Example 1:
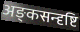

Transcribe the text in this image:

अङ्कसन्दृष्टि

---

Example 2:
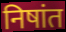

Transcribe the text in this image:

निषांत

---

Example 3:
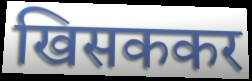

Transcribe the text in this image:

खिसककर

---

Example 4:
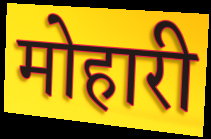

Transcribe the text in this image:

मोहारी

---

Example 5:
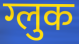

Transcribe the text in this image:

ग्लुक